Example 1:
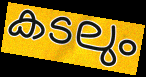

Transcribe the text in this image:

കടലും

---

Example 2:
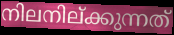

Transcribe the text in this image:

നിലനില്ക്കുന്നത്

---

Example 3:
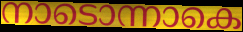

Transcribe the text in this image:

നാടൊന്നാകെ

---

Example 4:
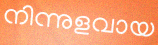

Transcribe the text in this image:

നിന്നുളവായ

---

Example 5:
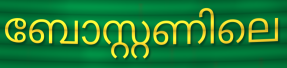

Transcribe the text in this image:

ബോസ്റ്റണിലെ